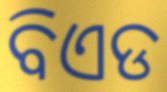
ବିଏଡ